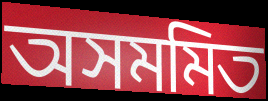
অসমমিত